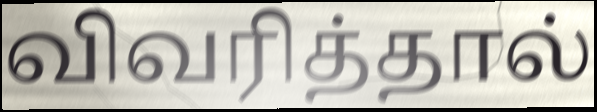
விவரித்தால்